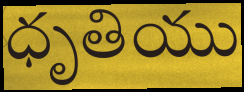
ధృతియు